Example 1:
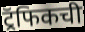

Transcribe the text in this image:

ट्रॅफिकची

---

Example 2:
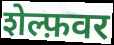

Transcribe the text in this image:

शेल्फ़वर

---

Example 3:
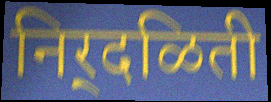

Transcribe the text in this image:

निर्दळिती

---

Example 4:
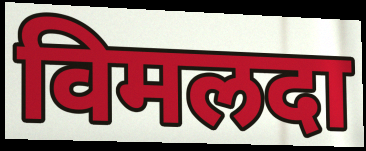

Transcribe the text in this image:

विमलदा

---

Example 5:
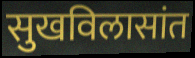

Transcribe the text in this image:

सुखविलासांत